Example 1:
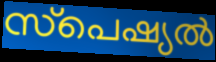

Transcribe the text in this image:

സ്‌പെഷ്യൽ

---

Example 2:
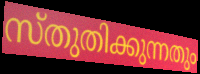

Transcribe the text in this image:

സ്തുതിക്കുന്നതും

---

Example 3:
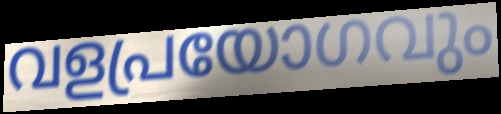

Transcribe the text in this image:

വളപ്രയോഗവും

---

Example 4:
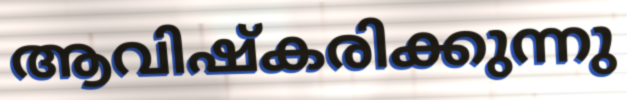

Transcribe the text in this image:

ആവിഷ്കരിക്കുന്നു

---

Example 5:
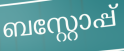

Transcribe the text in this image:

ബസ്റ്റോപ്പ്